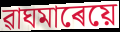
ৱাঘমাৰেয়ে